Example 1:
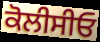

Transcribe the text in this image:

ਕੋਲੀਸੀਓ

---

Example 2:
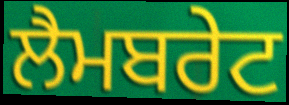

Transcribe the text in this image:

ਲੈਮਬਰੇਟ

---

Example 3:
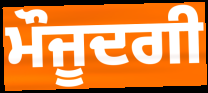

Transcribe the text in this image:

ਮੌਜੂਦਗੀ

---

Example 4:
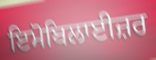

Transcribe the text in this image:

ਇਮੋਬਿਲਾਈਜ਼ਰ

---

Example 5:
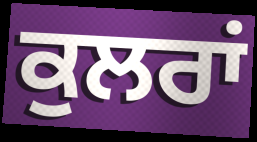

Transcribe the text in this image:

ਕੁਲਰਾਂ